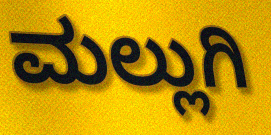
ಮಲ್ಲುಗಿ